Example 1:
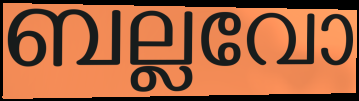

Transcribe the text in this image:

ബല്ലവോ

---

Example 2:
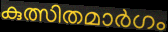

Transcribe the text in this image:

കുത്സിതമാർഗം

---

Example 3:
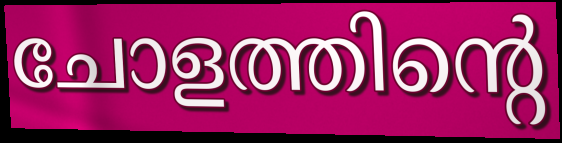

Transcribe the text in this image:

ചോളത്തിന്റെ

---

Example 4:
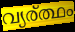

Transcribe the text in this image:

വ്യര്ത്ഥം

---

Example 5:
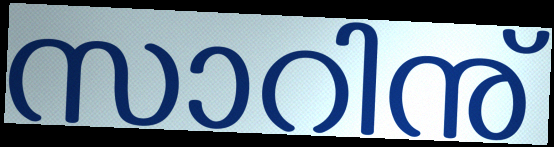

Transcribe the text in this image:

സാറിനു്